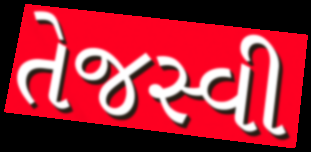
તેજસ્વી